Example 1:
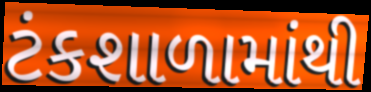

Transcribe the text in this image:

ટંકશાળામાંથી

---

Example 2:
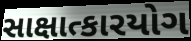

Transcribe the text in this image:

સાક્ષાત્કારયોગ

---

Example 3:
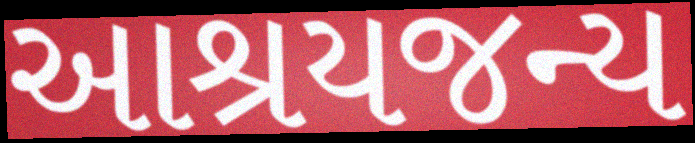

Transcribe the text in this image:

આશ્રયજન્ય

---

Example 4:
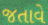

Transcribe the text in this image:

જતાવે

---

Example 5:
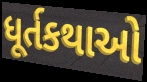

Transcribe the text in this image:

ધૂર્તકથાઓ